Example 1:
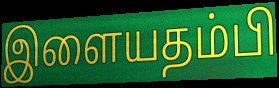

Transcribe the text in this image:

இளையதம்பி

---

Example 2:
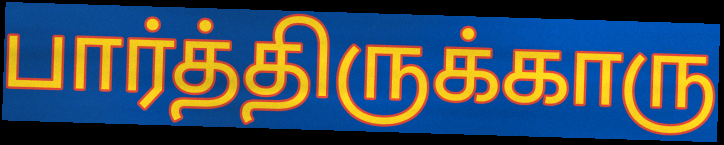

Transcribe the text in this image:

பார்த்திருக்காரு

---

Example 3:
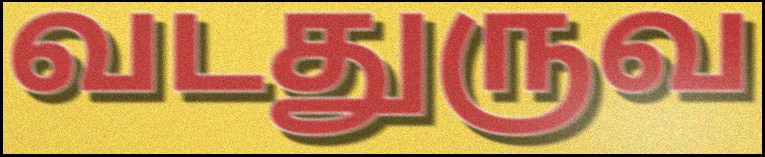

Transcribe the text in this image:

வடதுருவ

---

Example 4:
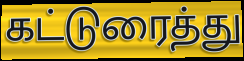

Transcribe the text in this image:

கட்டுரைத்து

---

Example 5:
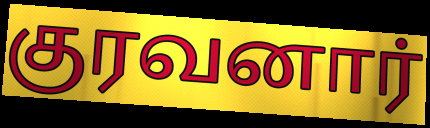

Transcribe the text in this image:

குரவனார்